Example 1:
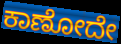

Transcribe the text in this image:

ಕಾಣೋದೇ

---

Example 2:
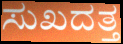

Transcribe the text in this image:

ಸುಖದತ್ತ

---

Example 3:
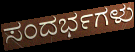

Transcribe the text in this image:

ಸಂದರ್ಭಗಳು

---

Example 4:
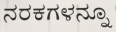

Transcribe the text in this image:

ನರಕಗಳನ್ನೂ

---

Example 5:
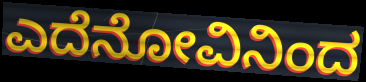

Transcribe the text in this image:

ಎದೆನೋವಿನಿಂದ